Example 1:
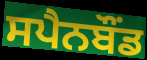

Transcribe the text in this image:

ਸਪੈਨਬੌਂਡ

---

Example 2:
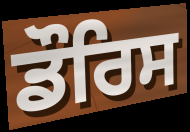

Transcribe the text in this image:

ਡੌਰਿਸ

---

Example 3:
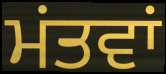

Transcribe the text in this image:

ਮਂਤਵਾਂ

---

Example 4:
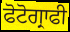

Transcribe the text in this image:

ਫੋਟੋਗ੍ਰਾਫੀ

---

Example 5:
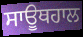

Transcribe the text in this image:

ਸਾਊਥਹਾਲ